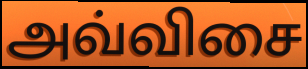
அவ்விசை